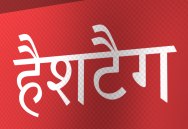
हैशटैग